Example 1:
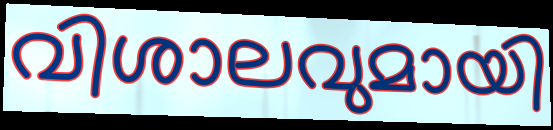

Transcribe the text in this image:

വിശാലവുമായി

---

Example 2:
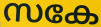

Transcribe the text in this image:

സകേ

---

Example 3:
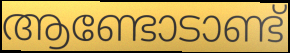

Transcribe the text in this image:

ആണ്ടോടാണ്ട്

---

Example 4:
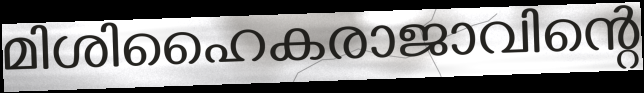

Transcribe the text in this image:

മിശിഹൈകരാജാവിന്റെ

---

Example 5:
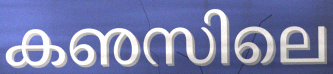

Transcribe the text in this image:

കഌസിലെ